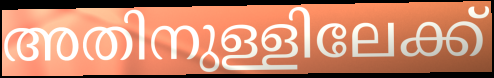
അതിനുള്ളിലേക്ക്